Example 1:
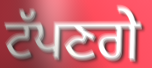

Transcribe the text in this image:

ਟੱਪਣਗੇ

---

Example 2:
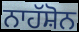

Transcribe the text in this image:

ਨਾਹੱਸ਼ੋਨ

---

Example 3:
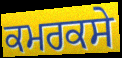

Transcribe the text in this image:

ਕਮਰਕਸੇ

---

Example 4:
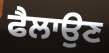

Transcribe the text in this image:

ਫੈਲਾਉਣ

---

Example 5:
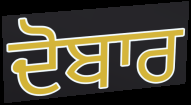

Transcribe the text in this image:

ਦੋਬਾਰ